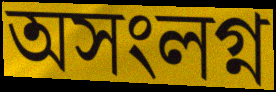
অসংলগ্ন